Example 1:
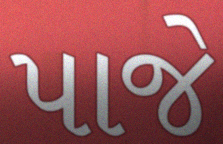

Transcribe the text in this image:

પાજે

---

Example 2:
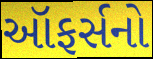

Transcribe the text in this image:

ઑફર્સનો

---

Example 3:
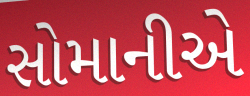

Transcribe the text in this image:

સોમાનીએ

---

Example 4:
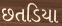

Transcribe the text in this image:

છતડિયા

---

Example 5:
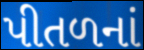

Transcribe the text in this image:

પીતળનાં